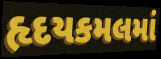
હૃદયકમલમાં